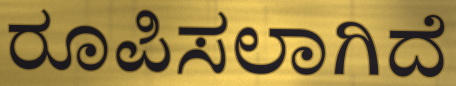
ರೂಪಿಸಲಾಗಿದೆ